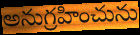
అనుగ్రహించును